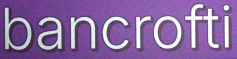
bancrofti